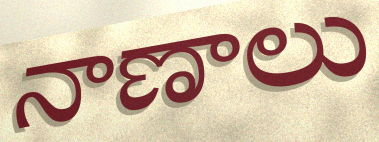
నాణాలు